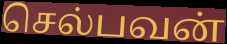
செல்பவன்